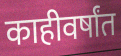
काहीवर्षांत